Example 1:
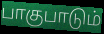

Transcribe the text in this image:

பாகுபாடும்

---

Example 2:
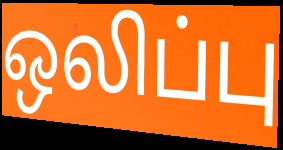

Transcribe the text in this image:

ஒலிப்பு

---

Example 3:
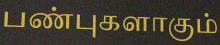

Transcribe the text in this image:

பண்புகளாகும்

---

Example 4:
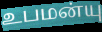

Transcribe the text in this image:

உபமன்யு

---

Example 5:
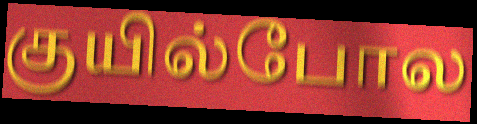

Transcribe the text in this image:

குயில்போல